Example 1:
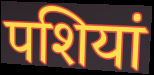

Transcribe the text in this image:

पशियां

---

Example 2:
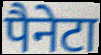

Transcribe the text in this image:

पैनेटा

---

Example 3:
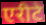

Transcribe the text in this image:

एरीटे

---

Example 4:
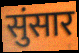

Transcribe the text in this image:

सुंसार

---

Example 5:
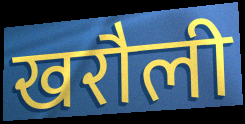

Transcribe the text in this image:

खरौली